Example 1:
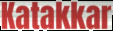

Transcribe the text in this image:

Katakkar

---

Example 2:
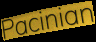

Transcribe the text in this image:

Pacinian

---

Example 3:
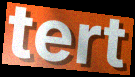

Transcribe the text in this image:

tert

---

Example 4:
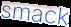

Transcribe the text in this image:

smack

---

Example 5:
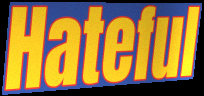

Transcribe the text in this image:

Hateful